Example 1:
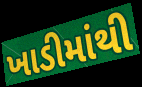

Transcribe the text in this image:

ખાડીમાંથી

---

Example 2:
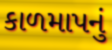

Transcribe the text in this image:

કાળમાપનું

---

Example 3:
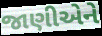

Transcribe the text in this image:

જાણીએને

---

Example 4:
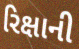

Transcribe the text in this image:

રિક્ષાની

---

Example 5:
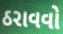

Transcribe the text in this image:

ઠરાવવો